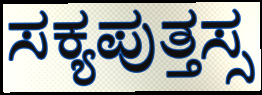
ಸಕ್ಯಪುತ್ತಸ್ಸ